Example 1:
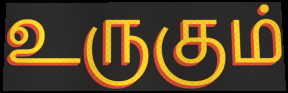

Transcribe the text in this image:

உருகும்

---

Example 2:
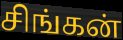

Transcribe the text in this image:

சிங்கன்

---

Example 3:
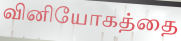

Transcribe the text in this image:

வினியோகத்தை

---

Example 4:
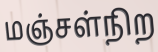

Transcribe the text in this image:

மஞ்சள்நிற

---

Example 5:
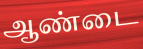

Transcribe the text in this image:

ஆண்டை